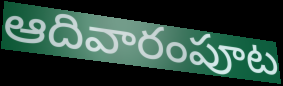
ఆదివారంపూట